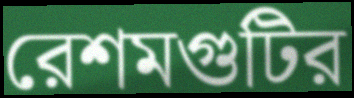
রেশমগুটির